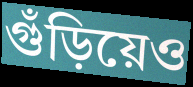
গুঁড়িয়েও